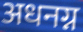
अधनग्न